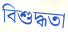
বিশুদ্ধতা